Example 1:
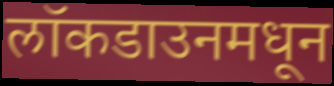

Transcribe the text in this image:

लॉकडाउनमधून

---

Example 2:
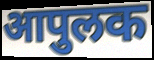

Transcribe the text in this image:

आपुलक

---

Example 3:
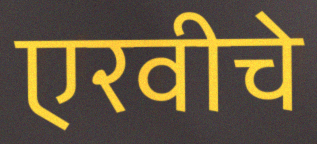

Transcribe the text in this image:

एरवीचे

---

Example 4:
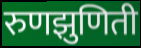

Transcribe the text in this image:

रुणझुणिती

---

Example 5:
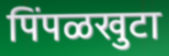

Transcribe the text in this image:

पिंपळखुटा